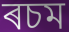
ৰচম